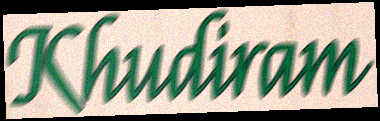
Khudiram